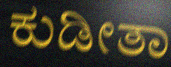
ಕುಡೀತಾ